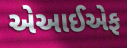
એઆઈએફ